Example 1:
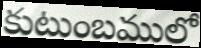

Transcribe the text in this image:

కుటుంబములో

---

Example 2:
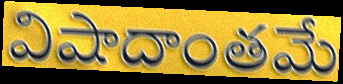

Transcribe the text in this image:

విషాదాంతమే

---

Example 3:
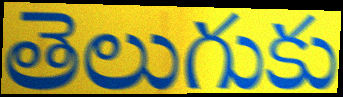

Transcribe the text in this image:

తెలుగుకు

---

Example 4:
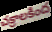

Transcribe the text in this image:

చక్రాలకింద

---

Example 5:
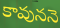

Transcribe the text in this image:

కావుననె